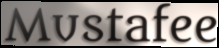
Mustafee